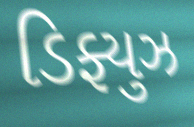
ડિફ્યુઝ